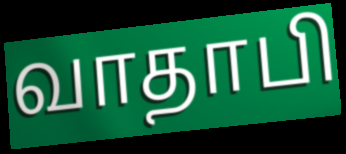
வாதாபி